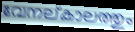
വേനല്കാലത്തും